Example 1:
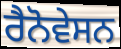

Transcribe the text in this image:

ਰੈਨੋਵੇਸਨ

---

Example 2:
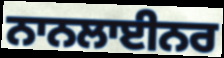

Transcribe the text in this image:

ਨਾਨਲਾਈਨਰ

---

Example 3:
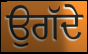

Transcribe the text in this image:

ਉਗੱਦੇ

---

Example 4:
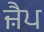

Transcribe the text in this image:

ਜ਼ੈਪ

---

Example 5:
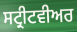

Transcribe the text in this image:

ਸਟ੍ਰੀਟਵੀਅਰ